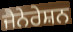
ਜੈਨੇਰੇਸ਼ਨ